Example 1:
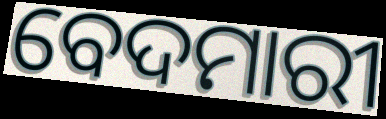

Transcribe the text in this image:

ବେଦମାରୀ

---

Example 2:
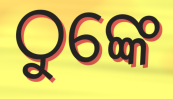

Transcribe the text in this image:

ଠୁଙ୍କେ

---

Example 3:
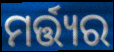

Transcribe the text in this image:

ମର୍ତ୍ତ୍ୟର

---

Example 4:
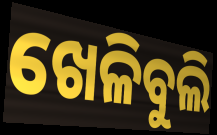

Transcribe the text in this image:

ଖେଳିବୁଲି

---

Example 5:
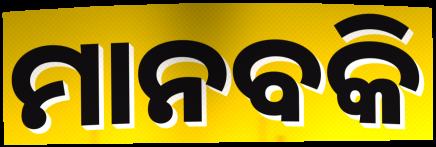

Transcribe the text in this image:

ମାନବକି